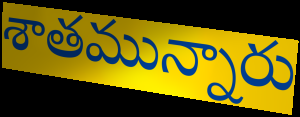
శాతమున్నారు